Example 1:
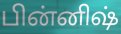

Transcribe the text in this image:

பின்னிஷ்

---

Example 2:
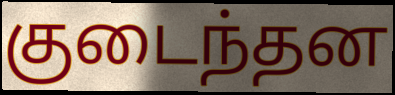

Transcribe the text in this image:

குடைந்தன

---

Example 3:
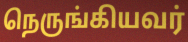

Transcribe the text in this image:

நெருங்கியவர்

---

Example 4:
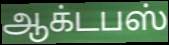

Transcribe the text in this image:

ஆக்டபஸ்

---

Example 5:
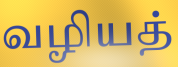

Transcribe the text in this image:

வழியத்